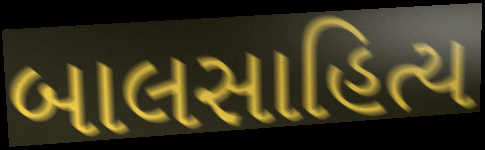
બાલસાહિત્ય